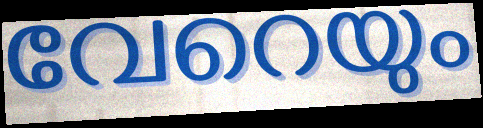
വേറെയും